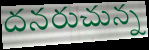
దనరుచున్న